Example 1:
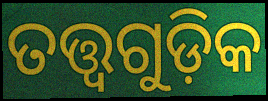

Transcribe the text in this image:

ତତ୍ତ୍ବଗୁଡ଼ିକ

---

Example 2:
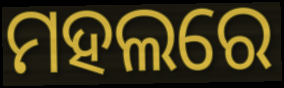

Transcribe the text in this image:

ମହଲରେ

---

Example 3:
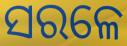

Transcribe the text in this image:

ସରଳେ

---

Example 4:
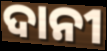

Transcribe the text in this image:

ଦାନୀ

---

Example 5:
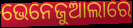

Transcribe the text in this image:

ଭେନେଜୁଆଲାରେ